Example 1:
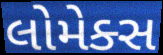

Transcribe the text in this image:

લોમેક્સ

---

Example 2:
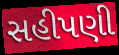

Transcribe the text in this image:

સહીપણી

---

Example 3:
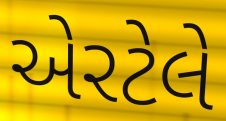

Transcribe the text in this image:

એરટેલે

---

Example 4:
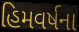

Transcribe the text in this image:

હિમવર્ષના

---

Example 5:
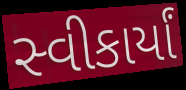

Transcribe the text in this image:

સ્વીકાર્યાં